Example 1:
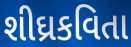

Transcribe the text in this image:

શીઘ્રકવિતા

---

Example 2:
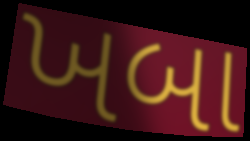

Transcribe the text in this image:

ખબા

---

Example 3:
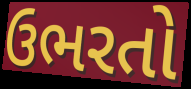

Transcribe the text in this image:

ઉભરતો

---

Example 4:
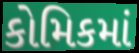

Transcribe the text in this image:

કોમિકમાં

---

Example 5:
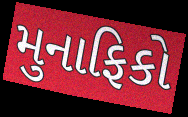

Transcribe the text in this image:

મુનાફિકો